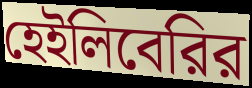
হেইলিবেরির